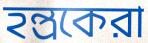
হন্ত্রকেরা